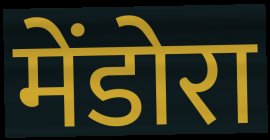
मेंडोरा